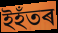
ইহঁতৰ